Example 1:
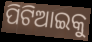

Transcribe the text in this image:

ପିଟିଆଇକୁ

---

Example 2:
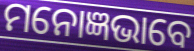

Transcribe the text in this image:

ମନୋଜ୍ଞଭାବେ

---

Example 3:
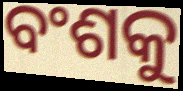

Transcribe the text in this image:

ବଂଶକୁ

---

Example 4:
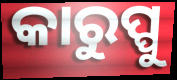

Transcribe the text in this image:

କାରୁପ୍ପୁ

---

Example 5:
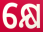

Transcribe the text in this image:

କ୍ଷେ